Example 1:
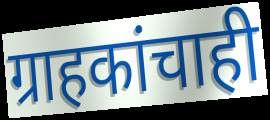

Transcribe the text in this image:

ग्राहकांचाही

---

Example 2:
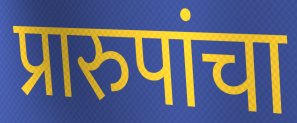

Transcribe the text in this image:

प्रारुपांचा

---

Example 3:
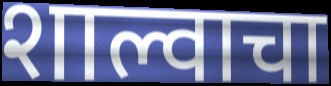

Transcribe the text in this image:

शाल्वाचा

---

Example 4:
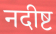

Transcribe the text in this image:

नदीष्ट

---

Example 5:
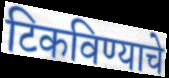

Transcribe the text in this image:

टिकविण्याचे